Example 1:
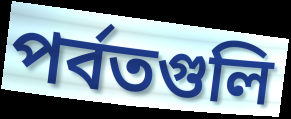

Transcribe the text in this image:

পর্বতগুলি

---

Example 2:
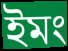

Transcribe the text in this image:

ইমং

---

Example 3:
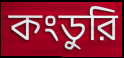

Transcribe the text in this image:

কংডুরি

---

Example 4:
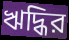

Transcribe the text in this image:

ঋদ্ধির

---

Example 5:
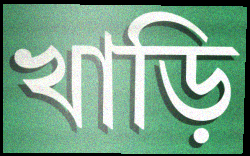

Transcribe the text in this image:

খাড়ি